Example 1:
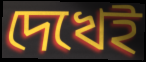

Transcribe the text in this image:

দেখেই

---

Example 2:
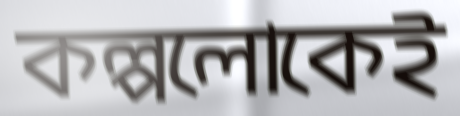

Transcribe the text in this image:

কল্পলোকেই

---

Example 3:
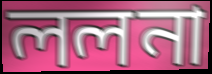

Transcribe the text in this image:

ললনা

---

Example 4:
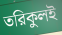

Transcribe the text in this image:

তরিকুলই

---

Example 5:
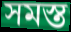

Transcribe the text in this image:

সমস্ত